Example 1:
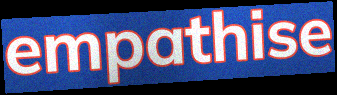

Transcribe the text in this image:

empathise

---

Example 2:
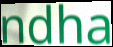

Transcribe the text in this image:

ndha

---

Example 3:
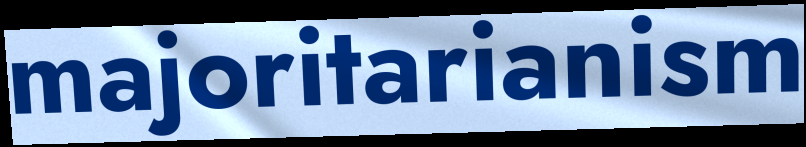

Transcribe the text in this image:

majoritarianism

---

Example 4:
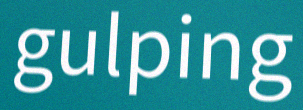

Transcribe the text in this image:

gulping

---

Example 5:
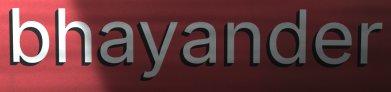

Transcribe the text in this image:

bhayander